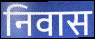
निवास